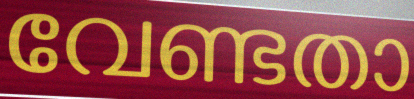
വേണ്ടതാ